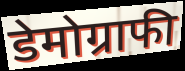
डेमोग्राफी